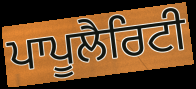
ਪਾਪੂਲੈਰਿਟੀ